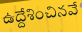
ఉద్దేశించినవే